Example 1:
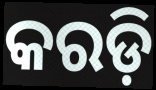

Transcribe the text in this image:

କରଡ଼ି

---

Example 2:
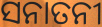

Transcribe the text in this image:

ସନାତନୀ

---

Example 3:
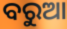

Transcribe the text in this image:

ବରୁଆ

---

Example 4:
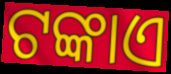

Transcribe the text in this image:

ଟଙ୍କାଏ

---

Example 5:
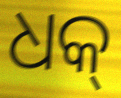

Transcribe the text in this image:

ଧକ୍